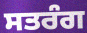
ਸਤਰੰਗ